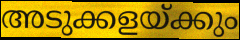
അടുക്കളയ്ക്കും